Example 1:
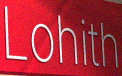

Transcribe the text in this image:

Lohith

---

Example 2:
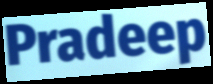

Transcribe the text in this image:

Pradeep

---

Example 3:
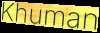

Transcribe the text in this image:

Khuman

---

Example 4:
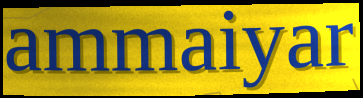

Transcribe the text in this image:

ammaiyar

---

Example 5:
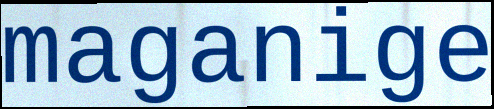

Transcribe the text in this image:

maganige